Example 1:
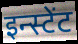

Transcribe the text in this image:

इन्स्टेंट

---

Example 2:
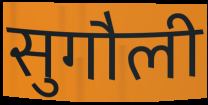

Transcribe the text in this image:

सुगौली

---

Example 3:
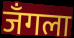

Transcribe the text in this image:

जँगला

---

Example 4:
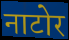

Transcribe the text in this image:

नाटोर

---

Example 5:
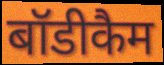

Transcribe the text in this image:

बॉडीकैम